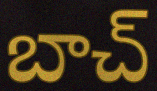
బాచ్